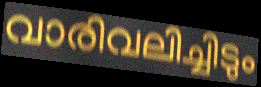
വാരിവലിച്ചിടും